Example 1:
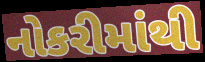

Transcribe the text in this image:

નોકરીમાંથી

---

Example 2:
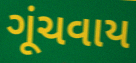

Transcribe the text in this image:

ગૂંચવાય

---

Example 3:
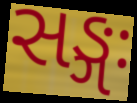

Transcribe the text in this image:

સઙ્ગઃ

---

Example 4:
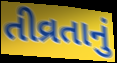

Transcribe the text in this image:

તીવ્રતાનું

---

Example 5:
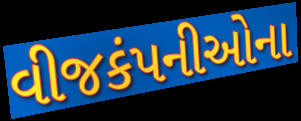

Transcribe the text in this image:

વીજકંપનીઓના